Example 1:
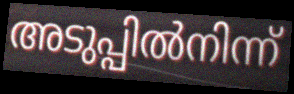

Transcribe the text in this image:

അടുപ്പിൽനിന്ന്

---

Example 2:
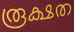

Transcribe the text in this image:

രൂക്ഷത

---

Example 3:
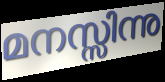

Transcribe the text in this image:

മനസ്സിന്നു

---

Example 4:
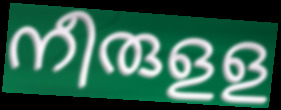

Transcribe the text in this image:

നീരുളള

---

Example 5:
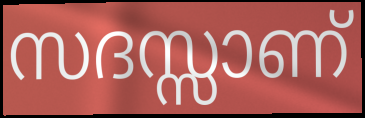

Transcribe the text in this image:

സദസ്സാണ്